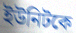
ইউনিটকে